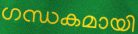
ഗന്ധകമായി